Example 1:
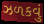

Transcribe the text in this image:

ઝળકવું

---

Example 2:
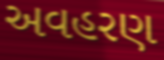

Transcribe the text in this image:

અવહરણ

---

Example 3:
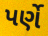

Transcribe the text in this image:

પર્ણે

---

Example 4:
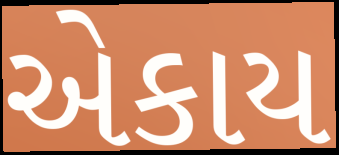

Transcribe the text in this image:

એકાય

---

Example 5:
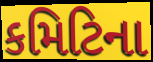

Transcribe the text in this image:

કમિટિના